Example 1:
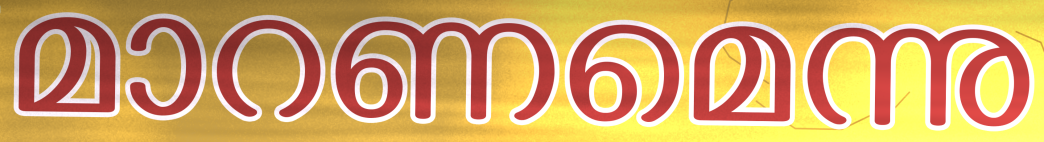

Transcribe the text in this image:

മാറണമെന്നു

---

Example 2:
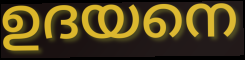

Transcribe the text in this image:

ഉദയനെ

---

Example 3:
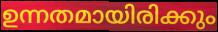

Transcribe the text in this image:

ഉന്നതമായിരിക്കും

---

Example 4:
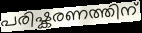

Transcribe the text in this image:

പരിഷ്കരണത്തിന്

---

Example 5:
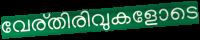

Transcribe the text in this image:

വേര്തിരിവുകളോടെ